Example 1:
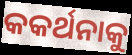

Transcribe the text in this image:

କକର୍ଥନାକୁ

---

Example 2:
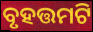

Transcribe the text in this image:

ବୃହତ୍ତମଟି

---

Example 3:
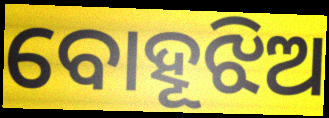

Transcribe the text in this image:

ବୋହୂଝିଅ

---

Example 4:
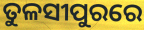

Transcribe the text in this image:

ତୁଳସୀପୁରରେ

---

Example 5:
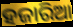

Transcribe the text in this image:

ହଜାରିଆ